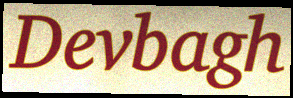
Devbagh